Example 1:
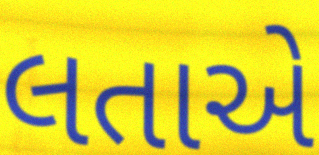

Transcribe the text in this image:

લતાએ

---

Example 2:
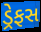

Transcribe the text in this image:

ડ્રેફસ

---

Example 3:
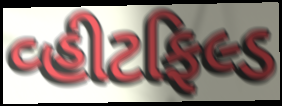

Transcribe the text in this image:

વ્હીટફિલ્ડ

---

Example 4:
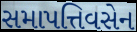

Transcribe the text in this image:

સમાપત્તિવસેન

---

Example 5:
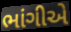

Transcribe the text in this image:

ભાંગીએ